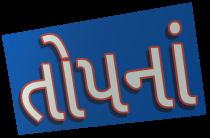
તોપનાં